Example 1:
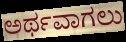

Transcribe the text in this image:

ಅರ್ಥವಾಗಲು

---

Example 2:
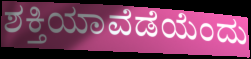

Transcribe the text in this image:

ಶಕ್ತಿಯಾವೆಡೆಯೆಂದು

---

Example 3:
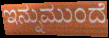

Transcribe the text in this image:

ಇನ್ನುಮುಂದೆ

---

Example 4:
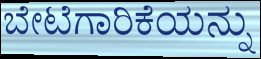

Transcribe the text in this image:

ಬೇಟೆಗಾರಿಕೆಯನ್ನು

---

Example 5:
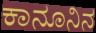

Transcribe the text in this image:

ಕಾನೂನಿನ